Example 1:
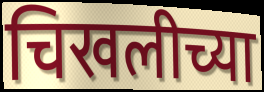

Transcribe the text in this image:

चिखलीच्या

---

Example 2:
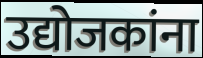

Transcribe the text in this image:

उद्योजकांना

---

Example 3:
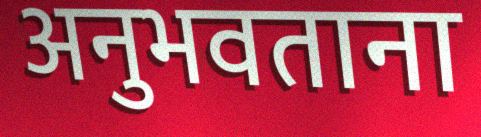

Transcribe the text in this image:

अनुभवताना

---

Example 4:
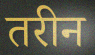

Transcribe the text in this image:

तरीन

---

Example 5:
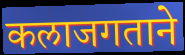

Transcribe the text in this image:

कलाजगताने